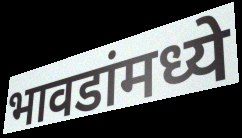
भावडांमध्ये